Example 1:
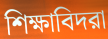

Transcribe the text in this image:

শিক্ষাবিদরা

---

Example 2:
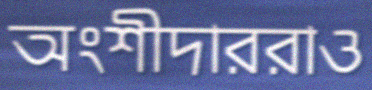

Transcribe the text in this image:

অংশীদাররাও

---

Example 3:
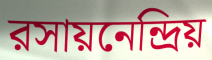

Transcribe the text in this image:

রসায়নেন্দ্রিয়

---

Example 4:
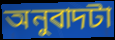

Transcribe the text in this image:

অনুবাদটা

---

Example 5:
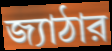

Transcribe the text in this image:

জ্যাঠার